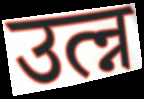
उत्न्न